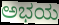
ಅಭಯ